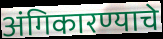
अंगिकारण्याचे